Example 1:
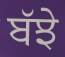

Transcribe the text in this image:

ਬੱਝੇ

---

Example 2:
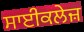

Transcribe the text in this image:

ਸਾਈਕਲੇਜ਼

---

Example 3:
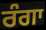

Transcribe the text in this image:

ਰੰਗਾ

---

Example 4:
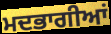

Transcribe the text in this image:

ਮਦਭਾਗੀਆਂ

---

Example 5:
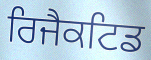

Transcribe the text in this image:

ਰਿਜੈਕਟਿਡ